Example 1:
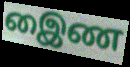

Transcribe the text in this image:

இைண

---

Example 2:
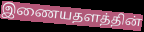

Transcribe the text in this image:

இணையதளத்தின்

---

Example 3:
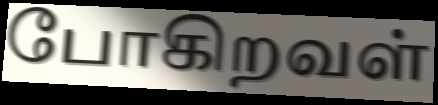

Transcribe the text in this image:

போகிறவள்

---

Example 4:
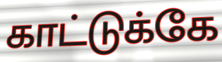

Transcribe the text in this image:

காட்டுக்கே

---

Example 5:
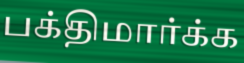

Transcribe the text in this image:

பக்திமார்க்க